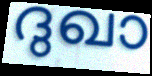
ദുഖാ